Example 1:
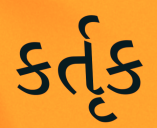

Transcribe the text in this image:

કર્તૃક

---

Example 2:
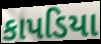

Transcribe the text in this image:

કાપડિયા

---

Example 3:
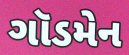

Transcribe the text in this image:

ગૉડમેન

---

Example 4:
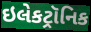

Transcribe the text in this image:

ઇલેકટ્રૉનિક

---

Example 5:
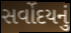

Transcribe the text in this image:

સર્વોદયનું